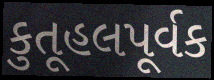
કુતૂહલપૂર્વક